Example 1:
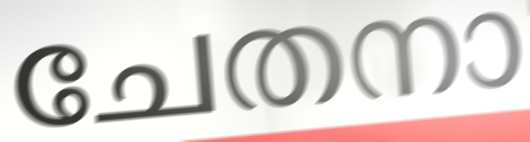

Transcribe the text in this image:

ചേതനാ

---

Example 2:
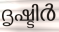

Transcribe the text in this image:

ദൃഷ്ടിർ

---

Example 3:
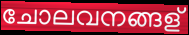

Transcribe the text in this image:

ചോലവനങ്ങള്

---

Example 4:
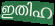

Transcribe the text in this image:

ഇതിഹ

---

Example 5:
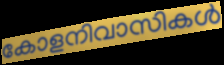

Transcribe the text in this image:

കോളനിവാസികൾ